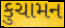
કુચામન